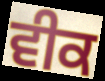
ਵੀਕ